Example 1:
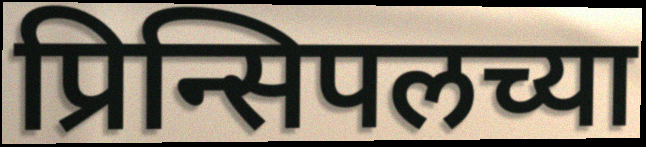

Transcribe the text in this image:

प्रिन्सिपलच्या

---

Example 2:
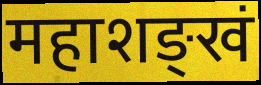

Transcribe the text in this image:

महाशङ्खं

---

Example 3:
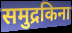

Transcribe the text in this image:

समुद्रकिना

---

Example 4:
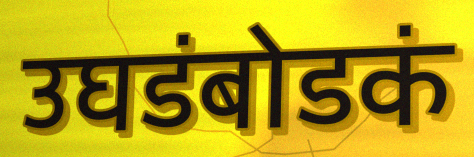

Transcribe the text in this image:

उघडंबोडकं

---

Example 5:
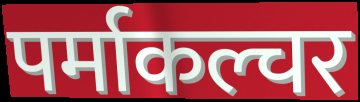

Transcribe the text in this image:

पर्माकल्चर